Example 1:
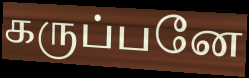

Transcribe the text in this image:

கருப்பனே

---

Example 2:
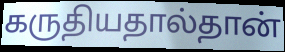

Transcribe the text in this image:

கருதியதால்தான்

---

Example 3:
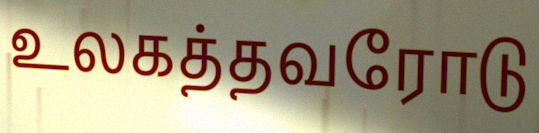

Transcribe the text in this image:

உலகத்தவரோடு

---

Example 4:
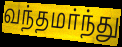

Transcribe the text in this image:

வந்தமர்ந்து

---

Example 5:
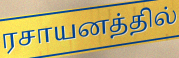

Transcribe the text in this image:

ரசாயனத்தில்